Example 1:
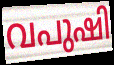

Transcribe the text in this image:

വപുഷി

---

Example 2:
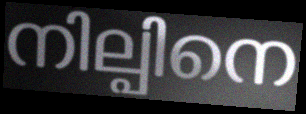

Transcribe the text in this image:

നില്പിനെ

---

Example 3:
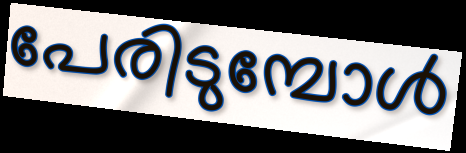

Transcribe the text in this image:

പേരിടുമ്പോൾ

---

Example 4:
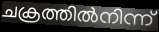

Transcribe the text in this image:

ചക്രത്തിൽനിന്ന്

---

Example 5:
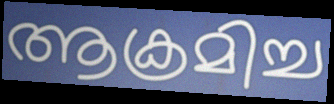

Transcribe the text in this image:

ആക്രമിച്ച